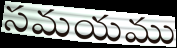
సమయము